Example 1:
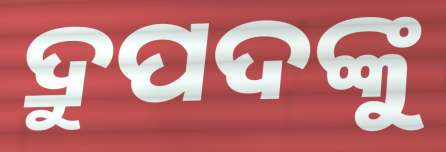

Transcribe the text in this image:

ଦ୍ରୁପଦଙ୍କୁ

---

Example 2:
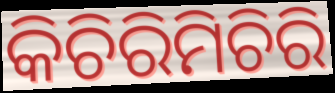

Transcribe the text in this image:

କିଚିରିମିଚିରି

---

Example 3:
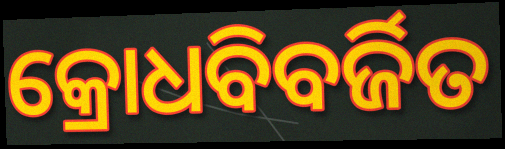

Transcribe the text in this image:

କ୍ରୋଧବିବର୍ଜିତ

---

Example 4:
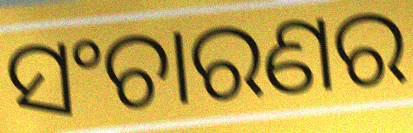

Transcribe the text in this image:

ସଂଚାରଣର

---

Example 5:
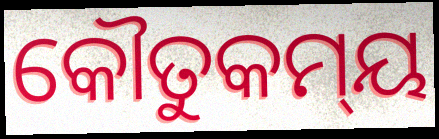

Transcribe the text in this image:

କୌତୁକମ୍‍ୟ